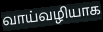
வாய்வழியாக